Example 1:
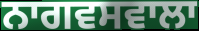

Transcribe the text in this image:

ਨਾਗਵਸਵਾਲਾ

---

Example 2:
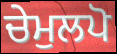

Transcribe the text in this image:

ਚੇਮੁਲਪੋ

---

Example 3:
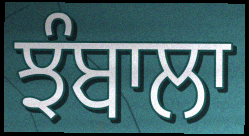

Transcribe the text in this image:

ਝੰਬਾਲਾ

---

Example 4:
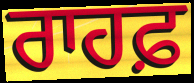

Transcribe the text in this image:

ਰਾਹਫ਼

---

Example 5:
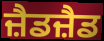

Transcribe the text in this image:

ਜ਼ੈਡਜ਼ੈਡ